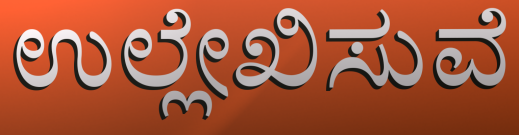
ಉಲ್ಲೇಖಿಸುವೆ